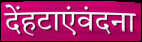
देंहटाएंवंदना